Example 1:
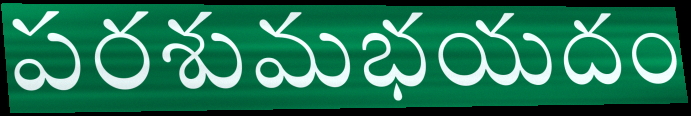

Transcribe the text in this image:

పరశుమభయదం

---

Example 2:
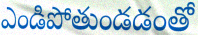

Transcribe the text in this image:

ఎండిపోతుండడంతో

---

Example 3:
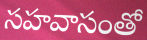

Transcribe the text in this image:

సహవాసంతో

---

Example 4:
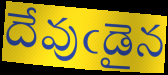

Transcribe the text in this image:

దేవుఁడైన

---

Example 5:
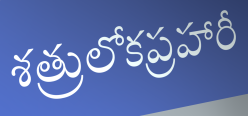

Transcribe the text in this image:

శత్రులోకప్రహారీ